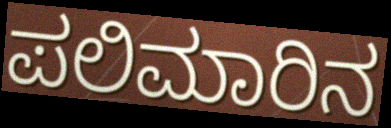
ಪಲಿಮಾರಿನ